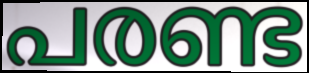
പരണ്ട